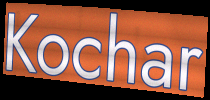
Kochar